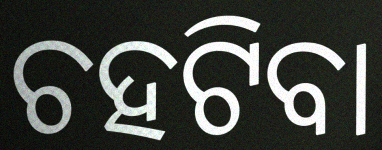
ଚହଟିବା